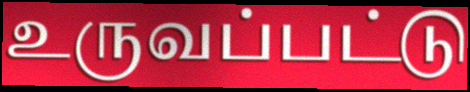
உருவப்பட்டு